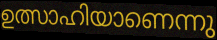
ഉത്സാഹിയാണെന്നു